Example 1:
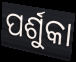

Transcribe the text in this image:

ପର୍ଶୁକା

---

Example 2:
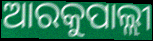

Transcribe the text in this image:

ଆରକୁପାଲ୍ଲୀ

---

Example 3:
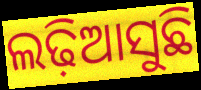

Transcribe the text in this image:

ଲଢ଼ିଆସୁଛି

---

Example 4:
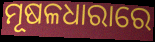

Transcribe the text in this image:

ମୂଷଳଧାରାରେ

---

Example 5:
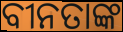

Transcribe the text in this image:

ବୀନତାଙ୍କ